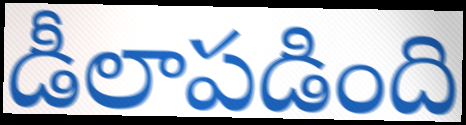
డీలాపడింది